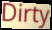
Dirty